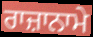
ਰਾਜ਼ਾਨਾਮੇ